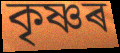
কৃষ্ণৰ